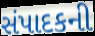
સંપાદકની